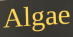
Algae